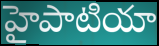
హైపాటియా